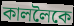
কাললৈকে